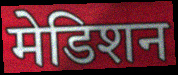
मेडिशन